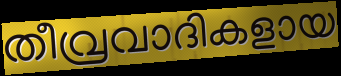
തീവ്രവാദികളായ